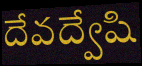
దేవద్వేషి